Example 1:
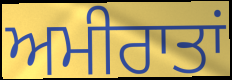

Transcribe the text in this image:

ਅਮੀਰਾਤਾਂ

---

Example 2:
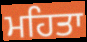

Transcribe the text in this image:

ਮਹਿਤਾ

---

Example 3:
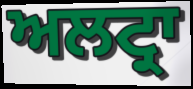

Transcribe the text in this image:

ਅਲਟ੍ਰਾ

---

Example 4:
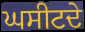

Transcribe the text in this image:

ਘਸੀਟਦੇ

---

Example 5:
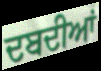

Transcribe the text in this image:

ਦਬਦੀਆਂ